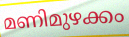
മണിമുഴക്കം